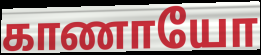
காணாயோ